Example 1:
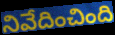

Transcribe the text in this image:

నివేదించింది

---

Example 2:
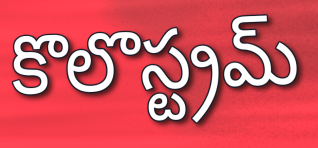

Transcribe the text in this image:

కొలొస్ట్రమ్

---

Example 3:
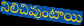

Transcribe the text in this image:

నిలిచివుంటాయి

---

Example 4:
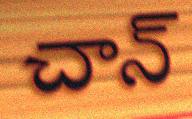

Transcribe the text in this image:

చాన్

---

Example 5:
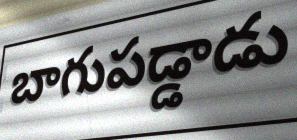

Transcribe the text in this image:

బాగుపడ్డాడు